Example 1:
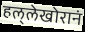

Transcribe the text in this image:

हल्लेखोरानं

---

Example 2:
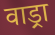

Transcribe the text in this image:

वाड्रा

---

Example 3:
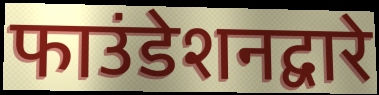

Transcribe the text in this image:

फाउंडेशनद्वारे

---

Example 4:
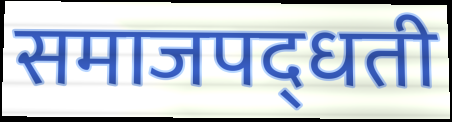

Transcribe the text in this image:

समाजपद्धती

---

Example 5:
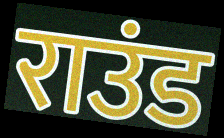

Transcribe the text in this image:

राउंड